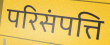
परिसंपत्ति